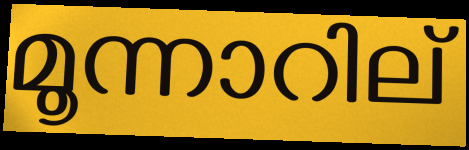
മൂന്നാറില്